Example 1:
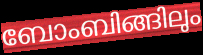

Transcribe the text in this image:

ബോംബിങ്ങിലും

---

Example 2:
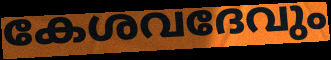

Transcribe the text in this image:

കേശവദേവും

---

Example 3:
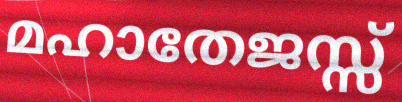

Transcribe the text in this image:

മഹാതേജസ്സ്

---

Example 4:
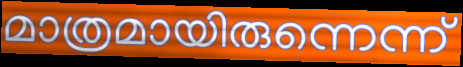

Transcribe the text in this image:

മാത്രമായിരുന്നെന്ന്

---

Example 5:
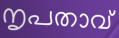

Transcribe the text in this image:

നൃപതാവ്